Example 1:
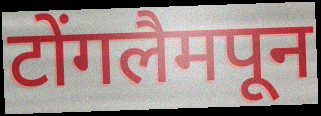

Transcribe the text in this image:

टोंगलैमपून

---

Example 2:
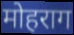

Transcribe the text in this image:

मोहराग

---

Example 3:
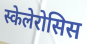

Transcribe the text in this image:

स्केलेरोसिस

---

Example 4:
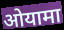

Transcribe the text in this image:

ओयामा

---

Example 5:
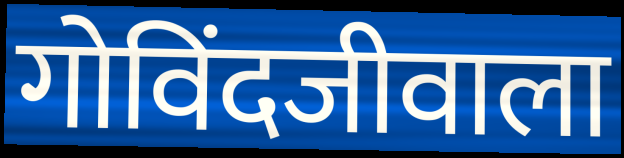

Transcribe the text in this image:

गोविंदजीवाला